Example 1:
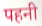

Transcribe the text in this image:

पहनी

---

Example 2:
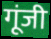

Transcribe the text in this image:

गूंजी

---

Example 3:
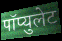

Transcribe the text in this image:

पॉप्युलेट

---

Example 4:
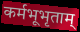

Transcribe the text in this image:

कर्मभूभृताम्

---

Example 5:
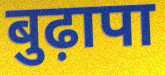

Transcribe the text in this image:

बुढ़ापा